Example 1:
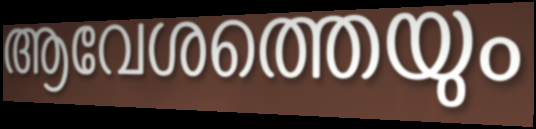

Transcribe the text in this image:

ആവേശത്തെയും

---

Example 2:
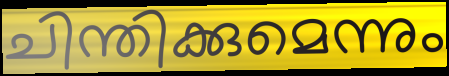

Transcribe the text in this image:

ചിന്തിക്കുമെന്നും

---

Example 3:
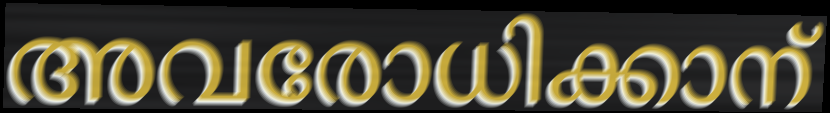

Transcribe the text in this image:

അവരോധിക്കാന്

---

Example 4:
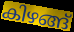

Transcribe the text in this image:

കിഴങ്ങ്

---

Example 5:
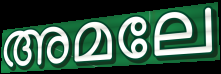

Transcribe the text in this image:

അമലേ